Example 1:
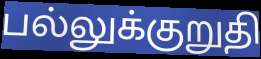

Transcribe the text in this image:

பல்லுக்குறுதி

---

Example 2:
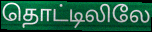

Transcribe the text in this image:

தொட்டிலிலே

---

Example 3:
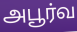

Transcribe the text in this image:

அபூர்வ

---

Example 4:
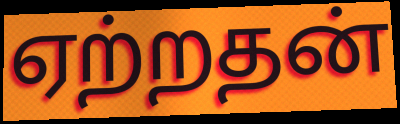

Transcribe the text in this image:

ஏற்றதன்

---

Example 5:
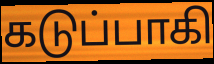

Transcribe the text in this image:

கடுப்பாகி